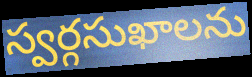
స్వర్గసుఖాలను